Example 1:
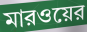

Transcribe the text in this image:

মারওয়ের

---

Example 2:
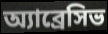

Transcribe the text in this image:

অ্যাব্রেসিভ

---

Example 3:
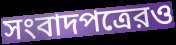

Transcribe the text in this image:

সংবাদপত্রেরও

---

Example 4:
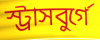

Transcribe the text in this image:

স্ট্রাসবুর্গে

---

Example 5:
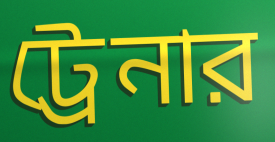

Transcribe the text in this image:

ট্রেনার